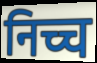
निच्च